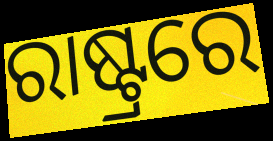
ରାଷ୍ଟ୍ରରେ